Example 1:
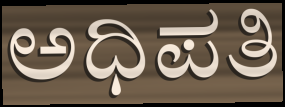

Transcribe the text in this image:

ಅಧಿಪತಿ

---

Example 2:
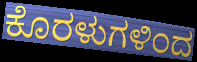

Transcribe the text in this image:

ಕೊರಳುಗಳಿಂದ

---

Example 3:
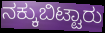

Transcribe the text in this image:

ನಕ್ಕುಬಿಟ್ಟಾರು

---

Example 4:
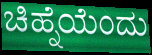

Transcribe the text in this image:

ಚಿಹ್ನೆಯೆಂದು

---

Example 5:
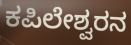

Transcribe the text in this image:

ಕಪಿಲೇಶ್ವರನ